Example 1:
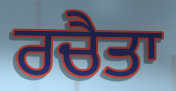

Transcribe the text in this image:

ਰਚੈਤਾ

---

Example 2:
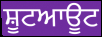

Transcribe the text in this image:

ਸ਼ੂਟਆਊਟ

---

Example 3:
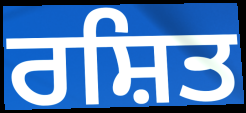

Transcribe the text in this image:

ਰਸ਼ਿਤ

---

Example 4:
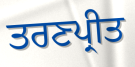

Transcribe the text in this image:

ਤਰਣਪ੍ਰੀਤ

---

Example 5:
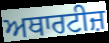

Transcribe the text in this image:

ਅਥਾਰਟੀਜ਼